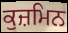
ਕੁਜ਼ਮਿਨ